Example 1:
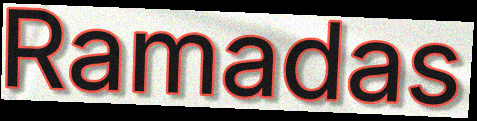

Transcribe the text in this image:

Ramadas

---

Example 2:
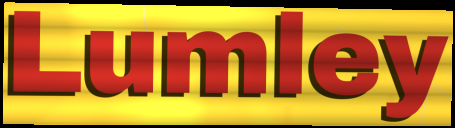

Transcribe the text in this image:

Lumley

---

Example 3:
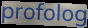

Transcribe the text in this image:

profolog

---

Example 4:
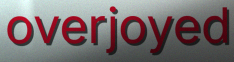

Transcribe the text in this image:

overjoyed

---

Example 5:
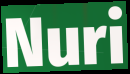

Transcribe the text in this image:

Nuri